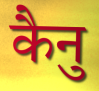
कैनु